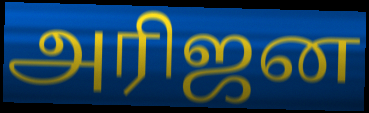
அரிஜன